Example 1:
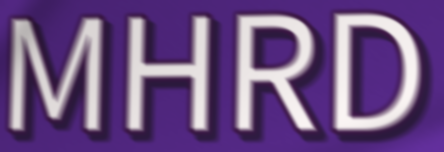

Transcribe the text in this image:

MHRD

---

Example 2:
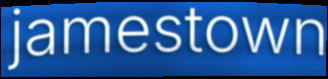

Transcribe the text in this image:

jamestown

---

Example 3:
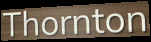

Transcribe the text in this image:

Thornton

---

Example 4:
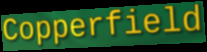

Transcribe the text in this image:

Copperfield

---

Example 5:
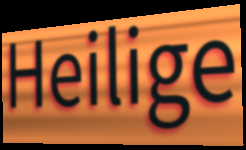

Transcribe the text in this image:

Heilige